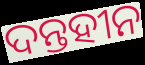
ଦନ୍ତହୀନ